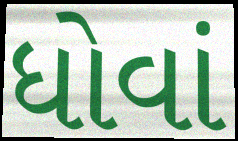
ધોવાં